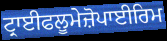
ਟ੍ਰਾਈਫਲੂਮੇਜ਼ੋਪਾਈਰਿਮ